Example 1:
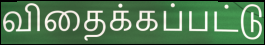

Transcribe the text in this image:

விதைக்கப்பட்டு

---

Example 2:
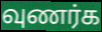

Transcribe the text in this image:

வுணர்க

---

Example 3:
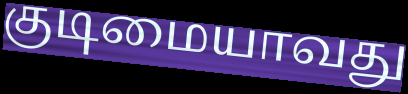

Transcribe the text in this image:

குடிமையாவது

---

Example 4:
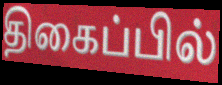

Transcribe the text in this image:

திகைப்பில்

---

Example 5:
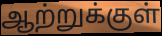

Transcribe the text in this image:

ஆற்றுக்குள்